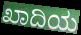
ಖಾದಿಯ